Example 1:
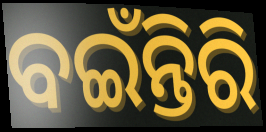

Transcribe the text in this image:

ବଇଁନ୍ତିରି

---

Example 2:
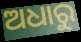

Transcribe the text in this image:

ଅଧାରୁ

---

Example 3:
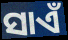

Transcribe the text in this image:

ସାଏଁ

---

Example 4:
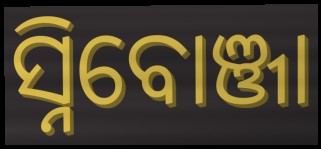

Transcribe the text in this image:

ସ୍ନିବୋଞ୍ଜା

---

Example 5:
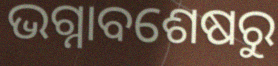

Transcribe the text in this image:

ଭଗ୍ନାବଶେଷରୁ